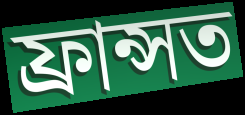
ফ্ৰান্সত